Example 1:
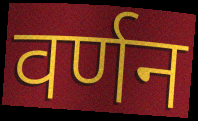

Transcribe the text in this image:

वर्णन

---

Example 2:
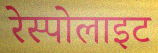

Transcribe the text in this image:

रेस्पोलाइट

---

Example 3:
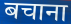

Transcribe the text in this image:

बचाना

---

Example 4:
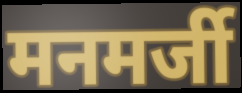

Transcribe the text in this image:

मनमर्जी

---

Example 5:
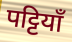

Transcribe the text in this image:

पट्टियाँ